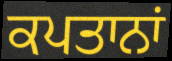
ਕਪਤਾਨਾਂ